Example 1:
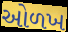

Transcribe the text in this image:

ઓળખ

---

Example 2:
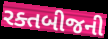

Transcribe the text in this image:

રક્તબીજની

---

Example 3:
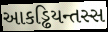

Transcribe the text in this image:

આકડ્ઢિયન્તસ્સ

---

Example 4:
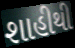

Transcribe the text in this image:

શાહીથી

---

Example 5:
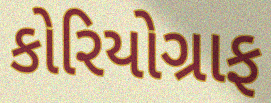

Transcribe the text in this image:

કોરિયોગ્રાફ